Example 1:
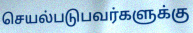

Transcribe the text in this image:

செயல்படுபவர்களுக்கு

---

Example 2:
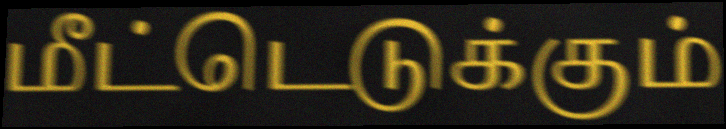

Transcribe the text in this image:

மீட்டெடுக்கும்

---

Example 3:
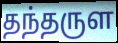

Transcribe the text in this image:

தந்தருள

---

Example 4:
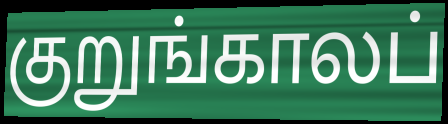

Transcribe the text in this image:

குறுங்காலப்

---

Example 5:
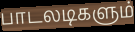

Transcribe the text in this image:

பாடலடிகளும்